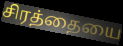
சிரத்தையை